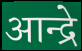
आन्द्रे